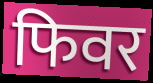
फिवर